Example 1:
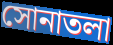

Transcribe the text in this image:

সোনাতলা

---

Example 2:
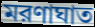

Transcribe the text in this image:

মরণাঘাত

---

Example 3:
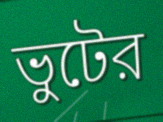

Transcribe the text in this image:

ভুটের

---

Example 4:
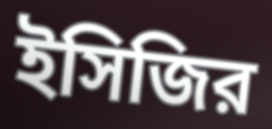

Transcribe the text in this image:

ইসিজির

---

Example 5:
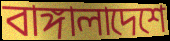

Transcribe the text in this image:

বাঙ্গালাদেশে